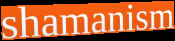
shamanism